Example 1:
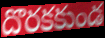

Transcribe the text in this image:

దొరకకుండ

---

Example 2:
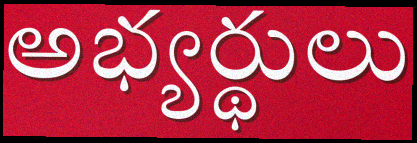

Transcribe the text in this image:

అభ్యర్థులు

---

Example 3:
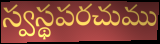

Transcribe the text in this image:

స్వస్థపరచుము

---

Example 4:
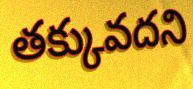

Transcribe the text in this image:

తక్కువదని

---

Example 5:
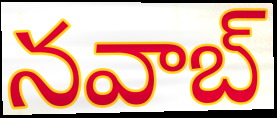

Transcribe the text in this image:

నవాబ్